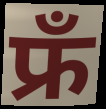
फ्रँ